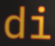
di